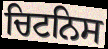
ਚਿਟਨਿਸ